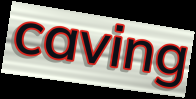
caving